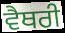
ਵੈਥਰੀ